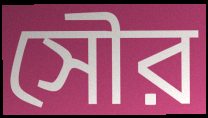
সৌর